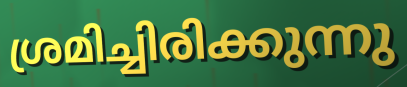
ശ്രമിച്ചിരിക്കുന്നു